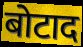
बोटाद